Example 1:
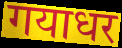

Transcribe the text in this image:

गयाधर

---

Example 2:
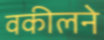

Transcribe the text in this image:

वकीलने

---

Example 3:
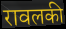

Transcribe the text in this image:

रावलकी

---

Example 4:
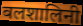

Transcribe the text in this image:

बलशालिनी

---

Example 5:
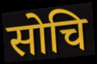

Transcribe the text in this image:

सोचि